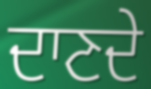
ਦਾਣਦੇ